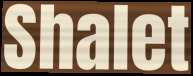
Shalet